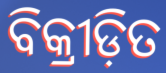
ବିକ୍ରୀଡ଼ିତ